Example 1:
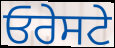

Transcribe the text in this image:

ਓਰੇਸਟੇ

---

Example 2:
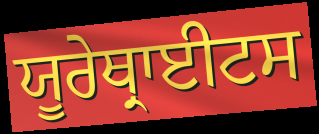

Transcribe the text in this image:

ਯੂਰੇਥ੍ਰਾਈਟਸ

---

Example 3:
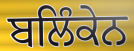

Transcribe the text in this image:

ਬਲਿੰਕੇਨ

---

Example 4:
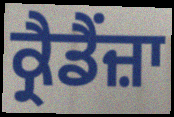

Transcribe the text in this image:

ਕ੍ਰੈਡੈਂਜ਼ਾ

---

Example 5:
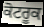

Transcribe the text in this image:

ਕੋਟਰੂਕ